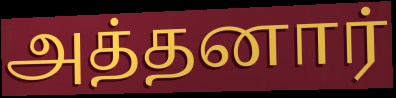
அத்தனார்